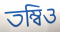
তম্বিও